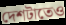
দেশটাতেও